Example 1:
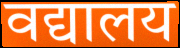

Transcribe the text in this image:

वद्यालय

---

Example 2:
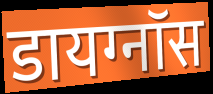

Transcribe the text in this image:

डायग्नॉस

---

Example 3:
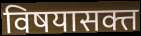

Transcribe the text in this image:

विषयासक्त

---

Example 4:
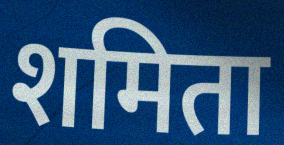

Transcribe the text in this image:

शमिता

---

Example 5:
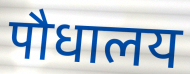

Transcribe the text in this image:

पौधालय